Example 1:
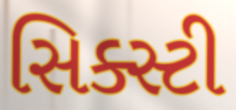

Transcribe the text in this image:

સિક્સ્ટી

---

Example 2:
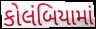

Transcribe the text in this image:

કોલંબિયામાં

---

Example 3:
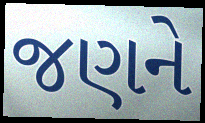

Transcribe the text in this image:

જણને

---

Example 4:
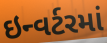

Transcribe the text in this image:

ઇન્વર્ટરમાં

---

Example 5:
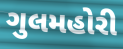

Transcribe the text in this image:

ગુલમહોરી